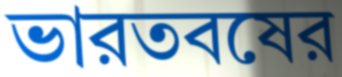
ভারতবষের